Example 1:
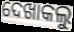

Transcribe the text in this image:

ଦେଖାକଲୁ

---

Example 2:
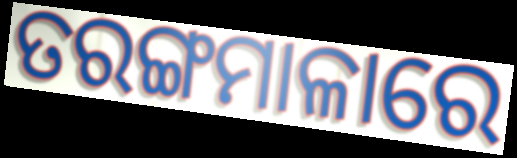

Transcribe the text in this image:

ତରଙ୍ଗମାଳାରେ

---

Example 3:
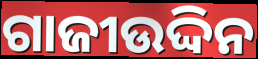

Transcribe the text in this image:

ଗାଜୀଉଦ୍ଦିନ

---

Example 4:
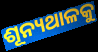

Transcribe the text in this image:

ଶୂନ୍ୟଥାଳକୁ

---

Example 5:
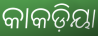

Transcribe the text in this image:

କାକଡ଼ିୟା